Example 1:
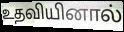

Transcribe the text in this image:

உதவியினால்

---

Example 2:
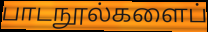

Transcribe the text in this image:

பாடநூல்களைப்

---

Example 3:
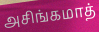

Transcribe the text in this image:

அசிங்கமாத்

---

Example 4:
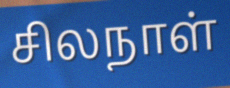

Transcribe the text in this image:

சிலநாள்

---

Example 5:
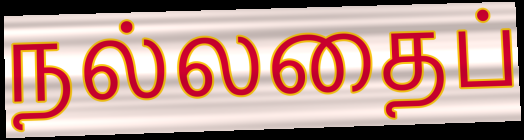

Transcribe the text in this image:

நல்லதைப்